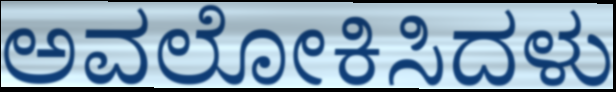
ಅವಲೋಕಿಸಿದಳು